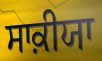
ਸਾਕ਼ੀਯਾ